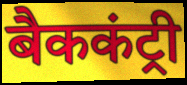
बैककंट्री